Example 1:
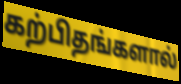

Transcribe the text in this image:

கற்பிதங்களால்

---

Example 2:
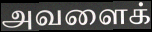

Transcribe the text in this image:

அவளைக்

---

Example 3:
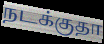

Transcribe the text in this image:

நடக்குதா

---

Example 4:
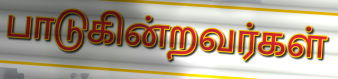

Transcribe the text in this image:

பாடுகின்றவர்கள்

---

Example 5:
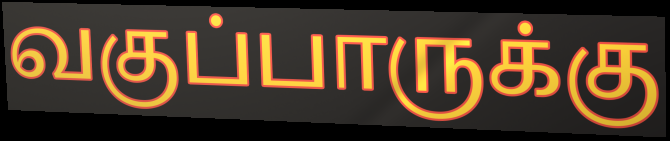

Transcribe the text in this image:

வகுப்பாருக்கு